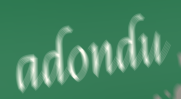
adondu